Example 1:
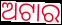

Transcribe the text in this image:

ଅଟାର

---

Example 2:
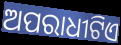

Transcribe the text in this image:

ଅପରାଧୀଟିଏ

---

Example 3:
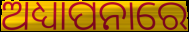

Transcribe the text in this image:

ଅଧ୍ୟାପନାରେ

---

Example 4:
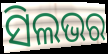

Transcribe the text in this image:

ସିଲଭର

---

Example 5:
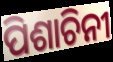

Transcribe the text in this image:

ପିଶାଚିନୀ